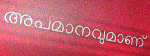
അപമാനവുമാണ്